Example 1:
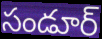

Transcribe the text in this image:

సండూర్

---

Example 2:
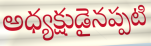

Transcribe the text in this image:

అధ్యక్షుడైనప్పటి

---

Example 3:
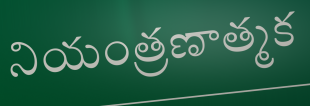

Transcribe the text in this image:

నియంత్రణాత్మక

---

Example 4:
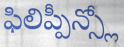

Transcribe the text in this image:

ఫిలిప్పీన్స్లో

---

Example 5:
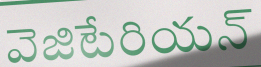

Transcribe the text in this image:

వెజిటేరియన్